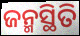
ଜନ୍ମସ୍ଥିତି